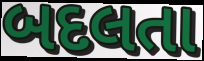
બદલતા